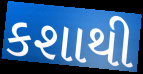
કશાથી